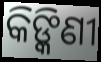
କିଙ୍କିଣୀ